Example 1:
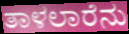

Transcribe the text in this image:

ತಾಳಲಾರೆನು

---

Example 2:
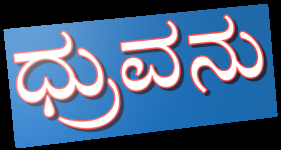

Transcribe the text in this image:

ಧ್ರುವನು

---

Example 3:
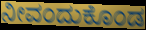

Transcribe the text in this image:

ನೀವಂದುಕೊಂಡ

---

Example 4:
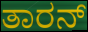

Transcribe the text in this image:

ತಾರನ್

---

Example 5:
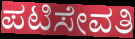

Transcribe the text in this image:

ಪಟಿಸೇವತಿ